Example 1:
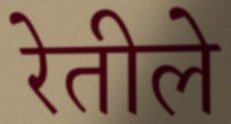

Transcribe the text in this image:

रेतीले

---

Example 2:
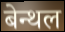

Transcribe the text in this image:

बेन्थल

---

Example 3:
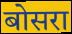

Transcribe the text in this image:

बोसरा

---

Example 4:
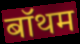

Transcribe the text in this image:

बॉथम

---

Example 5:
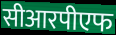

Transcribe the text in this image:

सीआरपीएफ